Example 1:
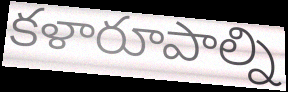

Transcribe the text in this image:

కళారూపాల్ని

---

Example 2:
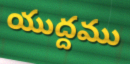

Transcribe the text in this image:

యుద్దము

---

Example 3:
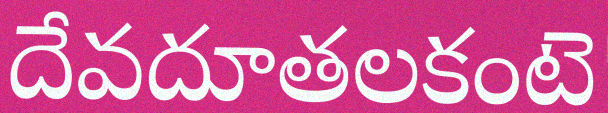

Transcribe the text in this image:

దేవదూతలకంటె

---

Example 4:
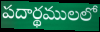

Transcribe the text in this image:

పదార్థములలో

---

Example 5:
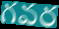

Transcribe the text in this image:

గవర